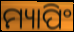
ମ୍ୟାପିଂ